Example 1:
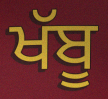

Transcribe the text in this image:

ਖੱਬੂ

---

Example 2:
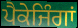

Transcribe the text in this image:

ਪੈਕੇਜਿੰਗਾਂ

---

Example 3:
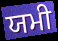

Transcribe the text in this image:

ਯਮੀ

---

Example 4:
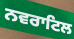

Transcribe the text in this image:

ਨਵਰਾਟਿਲ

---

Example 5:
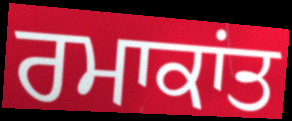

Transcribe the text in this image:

ਰਮਾਕਾਂਤ